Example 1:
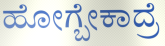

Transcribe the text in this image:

ಹೋಗ್ಬೇಕಾದ್ರೆ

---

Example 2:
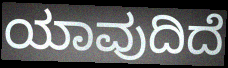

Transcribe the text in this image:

ಯಾವುದಿದೆ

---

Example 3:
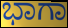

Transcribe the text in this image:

ಭಾಗಾ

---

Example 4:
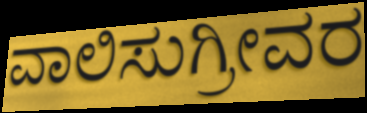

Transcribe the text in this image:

ವಾಲಿಸುಗ್ರೀವರ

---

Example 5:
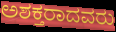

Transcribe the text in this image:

ಅಶಕ್ತರಾದವರು